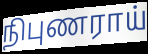
நிபுணராய்